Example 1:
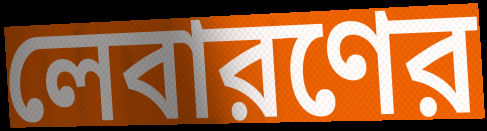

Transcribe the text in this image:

লেবারণের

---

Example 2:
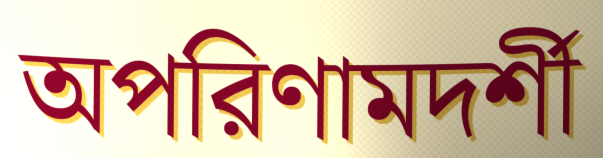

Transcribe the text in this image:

অপরিণামদর্শী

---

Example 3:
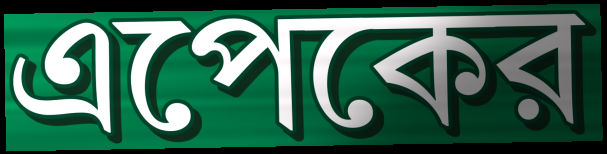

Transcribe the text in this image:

এপেকের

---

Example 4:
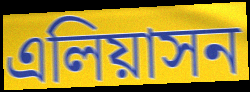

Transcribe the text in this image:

এলিয়াসন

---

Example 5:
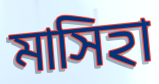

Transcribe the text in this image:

মাসিহা